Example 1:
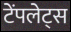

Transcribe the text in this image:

टेंपलेट्स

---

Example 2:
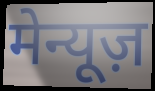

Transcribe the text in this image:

मेन्यूज़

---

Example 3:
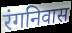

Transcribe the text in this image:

रंगनिवास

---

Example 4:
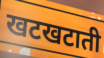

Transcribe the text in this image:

खटखटाती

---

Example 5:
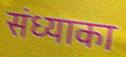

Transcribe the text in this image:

संध्याका